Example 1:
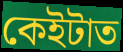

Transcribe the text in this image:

কেইটাত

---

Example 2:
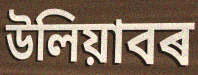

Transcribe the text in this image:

উলিয়াবৰ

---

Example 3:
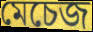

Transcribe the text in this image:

মেচেজ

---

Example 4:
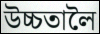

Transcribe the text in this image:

উচ্চতালৈ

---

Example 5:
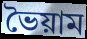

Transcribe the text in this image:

ভৈয়াম